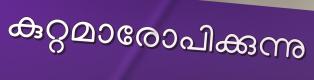
കുറ്റമാരോപിക്കുന്നു